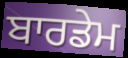
ਬਾਰਡੇਮ